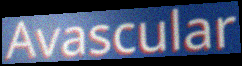
Avascular